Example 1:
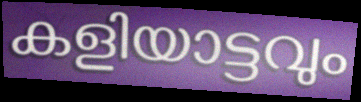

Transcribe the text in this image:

കളിയാട്ടവും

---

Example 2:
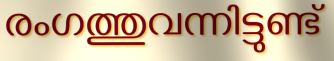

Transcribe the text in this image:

രംഗത്തുവന്നിട്ടുണ്ട്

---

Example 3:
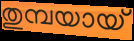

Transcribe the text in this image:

തുമ്പയായ്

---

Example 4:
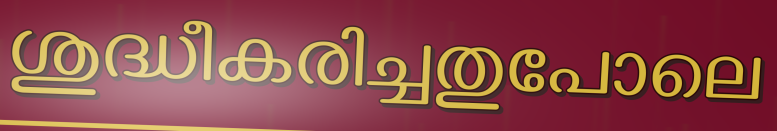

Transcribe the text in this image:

ശുദ്ധീകരിച്ചതുപോലെ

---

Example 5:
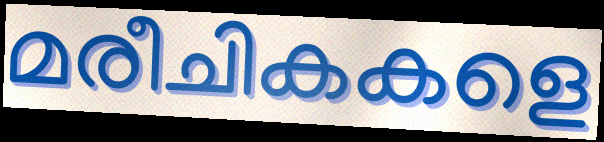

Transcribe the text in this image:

മരീചികകളെ